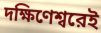
দক্ষিণেশ্বরেই